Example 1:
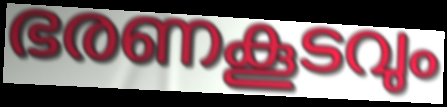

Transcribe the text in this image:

ഭരണകൂടവും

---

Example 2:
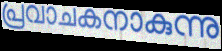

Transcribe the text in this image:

പ്രവാചകനാകുന്നു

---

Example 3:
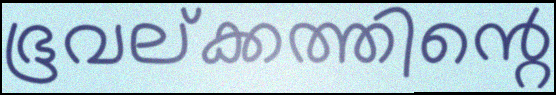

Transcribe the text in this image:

ഭൂവല്ക്കത്തിന്റെ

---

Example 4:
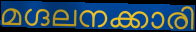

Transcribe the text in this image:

മഗ്ദലനക്കാരി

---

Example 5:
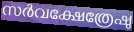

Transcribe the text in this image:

സർവക്ഷേത്രേഷു